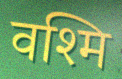
वश्मि